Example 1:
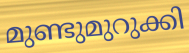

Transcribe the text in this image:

മുണ്ടുമുറുക്കി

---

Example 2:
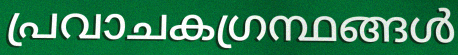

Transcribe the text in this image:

പ്രവാചകഗ്രന്ഥങ്ങൾ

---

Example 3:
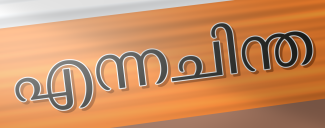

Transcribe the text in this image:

എന്നചിന്ത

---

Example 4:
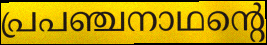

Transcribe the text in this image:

പ്രപഞ്ചനാഥന്റെ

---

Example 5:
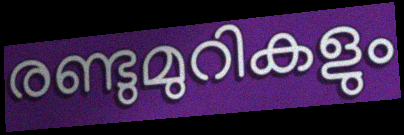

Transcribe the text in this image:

രണ്ടുമുറികളും